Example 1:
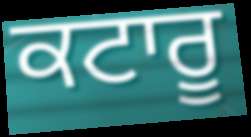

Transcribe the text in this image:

ਕਟਾਰੂ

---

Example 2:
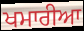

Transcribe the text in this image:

ਖਮਾਰੀਆ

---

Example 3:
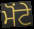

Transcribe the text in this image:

ਮੋਂਟੇ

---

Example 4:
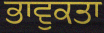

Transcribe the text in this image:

ਭਾਵੁਕਤਾ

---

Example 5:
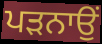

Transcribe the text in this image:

ਪਡ਼ਨਾਉਂ